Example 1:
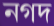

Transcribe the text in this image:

নগদ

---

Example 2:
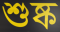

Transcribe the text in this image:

শুষ্ক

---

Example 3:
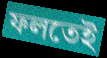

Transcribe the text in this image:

ফলতেই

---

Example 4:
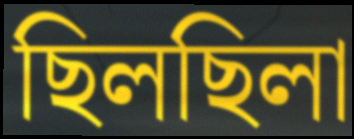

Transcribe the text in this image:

ছিলছিলা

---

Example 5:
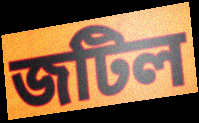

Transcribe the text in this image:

জটিল